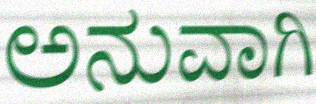
ಅನುವಾಗಿ